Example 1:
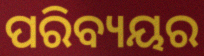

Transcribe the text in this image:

ପରିବ୍ୟୟର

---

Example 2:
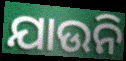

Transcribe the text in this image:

ଯାଉନି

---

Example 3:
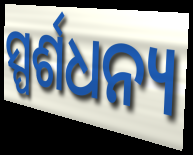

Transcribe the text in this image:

ସ୍ପର୍ଶଧନ୍ୟ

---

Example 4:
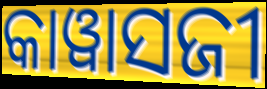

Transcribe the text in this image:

କାୱାସଜୀ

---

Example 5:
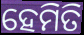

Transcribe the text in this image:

ହେମିତି